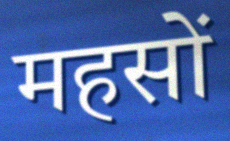
महसों